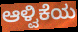
ಆಳ್ವಿಕೆಯ